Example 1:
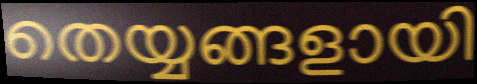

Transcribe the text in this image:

തെയ്യങ്ങളായി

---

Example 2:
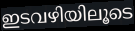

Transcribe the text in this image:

ഇടവഴിയിലൂടെ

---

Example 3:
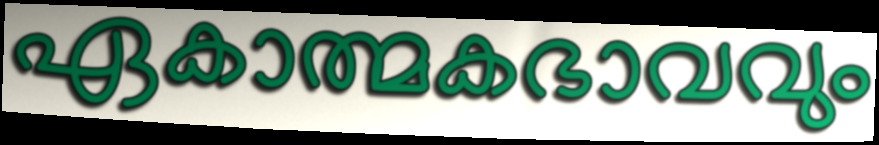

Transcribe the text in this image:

ഏകാത്മകഭാവവും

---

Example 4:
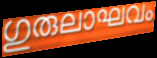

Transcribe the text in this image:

ഗുരുലാഘവം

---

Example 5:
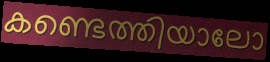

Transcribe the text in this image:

കണ്ടെത്തിയാലോ